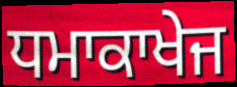
ਧਮਾਕਾਖੇਜ